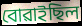
বোৱাইছিল